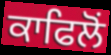
ਕਾਫਿਲੋਂ